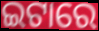
ଇଟାରେ